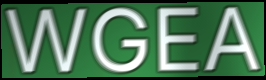
WGEA